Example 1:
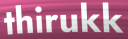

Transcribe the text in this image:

thirukk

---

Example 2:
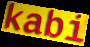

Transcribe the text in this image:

kabi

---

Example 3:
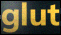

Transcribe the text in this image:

glut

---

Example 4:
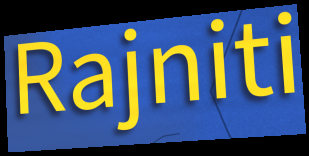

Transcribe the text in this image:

Rajniti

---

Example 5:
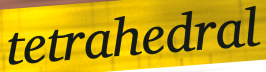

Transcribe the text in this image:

tetrahedral